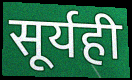
सूर्यही